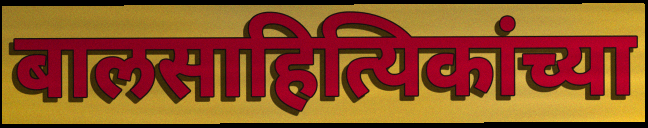
बालसाहित्यिकांच्या